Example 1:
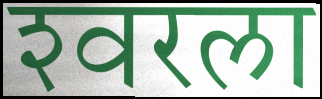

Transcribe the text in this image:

श्वरला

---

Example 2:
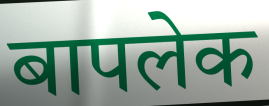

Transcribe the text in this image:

बापलेक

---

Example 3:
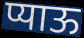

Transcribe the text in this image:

प्याऊ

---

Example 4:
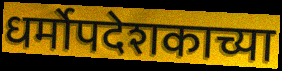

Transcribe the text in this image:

धर्मोपदेशकाच्या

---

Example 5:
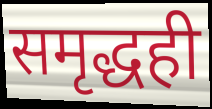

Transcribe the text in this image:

समृद्धही